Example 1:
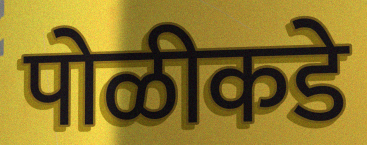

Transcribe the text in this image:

पोळीकडे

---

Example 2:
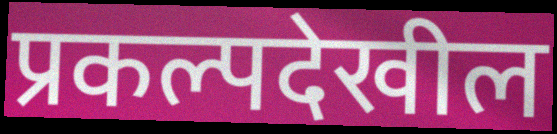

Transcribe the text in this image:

प्रकल्पदेखील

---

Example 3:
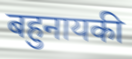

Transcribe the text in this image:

बहुनायकी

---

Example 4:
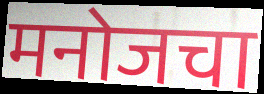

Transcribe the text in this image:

मनोजचा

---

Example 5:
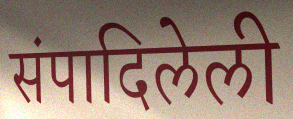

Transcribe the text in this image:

संपादिलेली